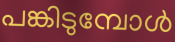
പങ്കിടുമ്പോൾ